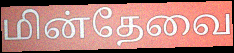
மின்தேவை